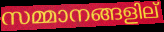
സമ്മാനങ്ങളില്